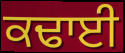
ਕਢਾਈ